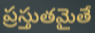
ప్రస్తుతమైతే